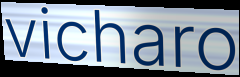
vicharo